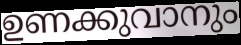
ഉണക്കുവാനും